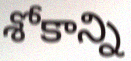
శోకాన్ని